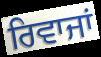
ਰਿਵਾਜਾਂ